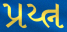
પ્રય્ત્ન